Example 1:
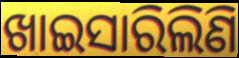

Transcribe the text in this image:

ଖାଇସାରିଲିଣି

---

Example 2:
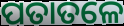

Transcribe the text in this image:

ପତାତଳେ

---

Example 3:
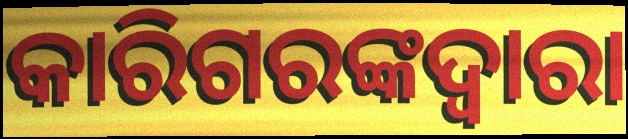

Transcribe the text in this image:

କାରିଗରଙ୍କଦ୍ୱାରା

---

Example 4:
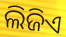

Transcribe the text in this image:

ଲିଜିଏ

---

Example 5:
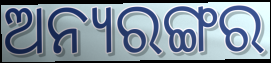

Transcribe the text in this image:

ଅନ୍ୟରଙ୍ଗର